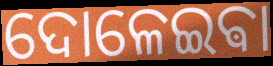
ଦୋଳେଇଵା